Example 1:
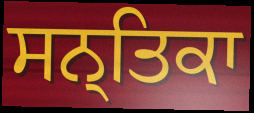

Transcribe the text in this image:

ਸਨ੍ਤਿਕਾ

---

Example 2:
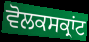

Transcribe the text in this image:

ਵੋਲਕਸਕ੍ਰਾਂਟ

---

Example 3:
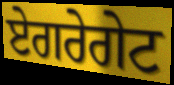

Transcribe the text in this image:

ਏਗਰੇਗੇਟ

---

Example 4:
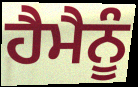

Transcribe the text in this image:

ਹੈਮੈਨੂੰ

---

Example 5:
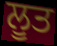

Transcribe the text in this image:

ਲੂਤ